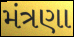
મંત્રણા